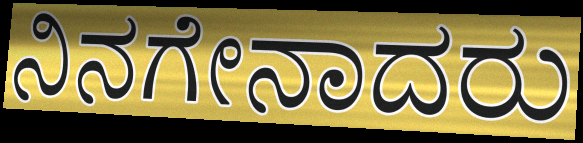
ನಿನಗೇನಾದರು